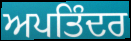
ਅਪਤਿੰਦਰ